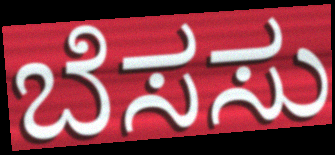
ಬೆಸಸು